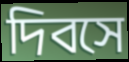
দিবসে